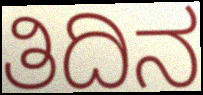
ತಿದಿನ